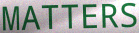
MATTERS